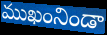
ముఖంనిండా